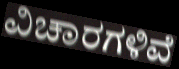
ವಿಚಾರಗಳಿವೆ